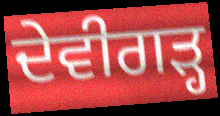
ਦੇਵੀਗੜ੍ਹ